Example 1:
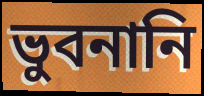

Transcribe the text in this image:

ভুবনানি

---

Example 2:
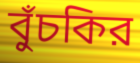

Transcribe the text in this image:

বুঁচকির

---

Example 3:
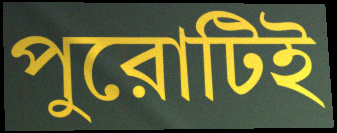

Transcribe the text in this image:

পুরোটিই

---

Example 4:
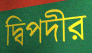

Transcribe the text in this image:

দ্বিপদীর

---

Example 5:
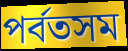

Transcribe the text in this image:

পর্বতসম